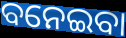
ବନେଇବା